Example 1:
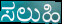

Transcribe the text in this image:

ಸಲುಹಿ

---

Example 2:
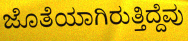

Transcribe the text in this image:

ಜೊತೆಯಾಗಿರುತ್ತಿದ್ದೆವು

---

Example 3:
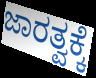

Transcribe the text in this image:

ಜಾರತ್ವಕ್ಕೆ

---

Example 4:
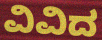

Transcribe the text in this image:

ವಿವಿದ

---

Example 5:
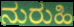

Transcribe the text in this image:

ನುರುಹಿ